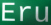
Eru